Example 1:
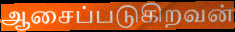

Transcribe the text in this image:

ஆசைப்படுகிறவன்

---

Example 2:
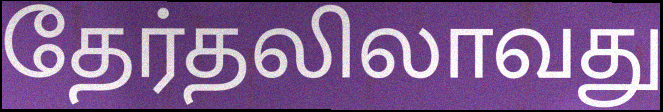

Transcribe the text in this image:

தேர்தலிலாவது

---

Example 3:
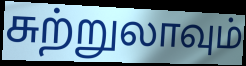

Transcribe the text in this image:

சுற்றுலாவும்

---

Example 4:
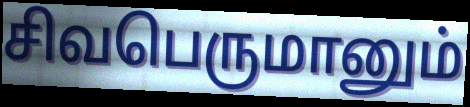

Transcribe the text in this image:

சிவபெருமானும்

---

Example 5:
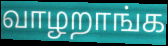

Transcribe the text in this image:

வாழறாங்க